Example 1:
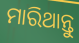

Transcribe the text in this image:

ମାରିଥାନ୍ତୁ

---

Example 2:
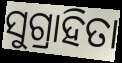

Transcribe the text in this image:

ସୁଗ୍ରାହିତା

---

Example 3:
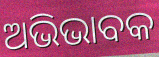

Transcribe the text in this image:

ଅଭିଭାବକ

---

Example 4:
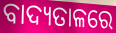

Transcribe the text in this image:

ବାଦ୍ୟତାଳରେ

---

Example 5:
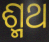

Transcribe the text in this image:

ଶ୍ମଥ